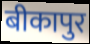
बीकापुर